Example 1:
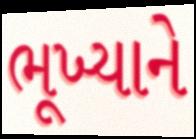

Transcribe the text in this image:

ભૂખ્યાને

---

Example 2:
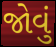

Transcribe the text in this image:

જોવું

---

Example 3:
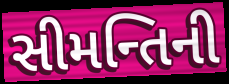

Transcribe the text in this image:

સીમન્તિની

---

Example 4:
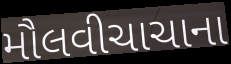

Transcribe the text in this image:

મૌલવીચાચાના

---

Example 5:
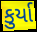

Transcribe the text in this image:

કુર્યા